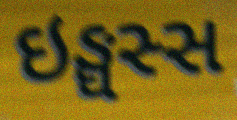
ઇઙ્ઘસ્સ